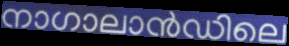
നാഗാലാൻഡിലെ